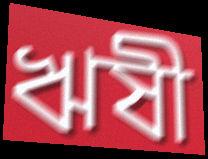
ঋষী